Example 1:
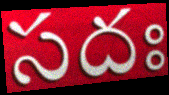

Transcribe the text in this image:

సదః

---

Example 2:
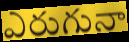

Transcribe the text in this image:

ఎరుగునా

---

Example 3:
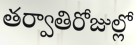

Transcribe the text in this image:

తర్వాతిరోజుల్లో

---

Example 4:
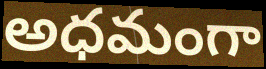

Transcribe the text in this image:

అధమంగా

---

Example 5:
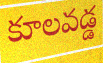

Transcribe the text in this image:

కూలవడ్డ